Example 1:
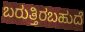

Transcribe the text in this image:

ಬರುತ್ತಿರಬಹುದೆ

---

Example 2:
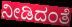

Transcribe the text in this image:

ನೀಡಿದಂತೆ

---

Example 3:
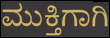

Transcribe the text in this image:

ಮುಕ್ತಿಗಾಗಿ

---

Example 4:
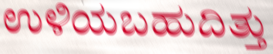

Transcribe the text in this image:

ಉಳಿಯಬಹುದಿತ್ತು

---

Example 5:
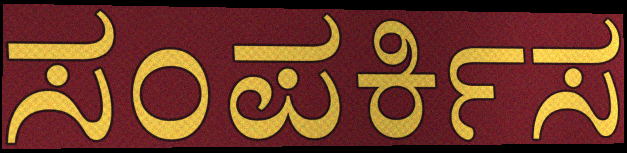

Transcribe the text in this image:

ಸಂಪರ್ಕಿಸ